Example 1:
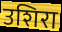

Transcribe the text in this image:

उशिरा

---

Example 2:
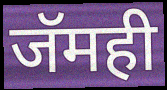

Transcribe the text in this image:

जॅमही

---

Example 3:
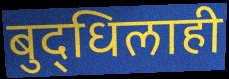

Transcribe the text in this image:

बुद्धिलाही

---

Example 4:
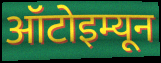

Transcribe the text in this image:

ऑटोइम्यून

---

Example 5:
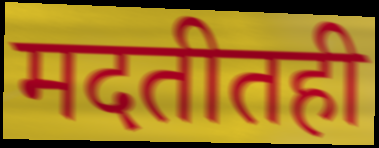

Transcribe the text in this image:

मदतीतही